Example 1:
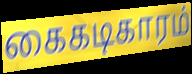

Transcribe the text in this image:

கைகடிகாரம்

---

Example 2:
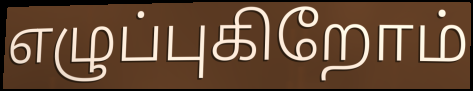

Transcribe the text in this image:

எழுப்புகிறோம்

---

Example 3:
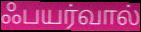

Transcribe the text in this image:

ஃபயர்வால்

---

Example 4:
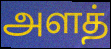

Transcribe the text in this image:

அளத்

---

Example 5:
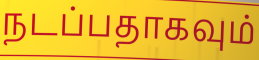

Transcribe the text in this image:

நடப்பதாகவும்